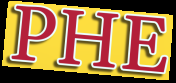
PHE